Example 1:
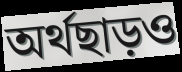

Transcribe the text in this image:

অর্থছাড়ও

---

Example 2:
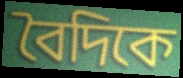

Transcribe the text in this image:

বৈদিকে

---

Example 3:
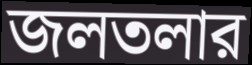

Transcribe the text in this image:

জলতলার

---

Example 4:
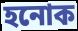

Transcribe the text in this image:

হনোক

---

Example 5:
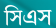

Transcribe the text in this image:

সিএস